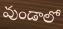
వుండాలో